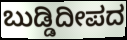
ಬುಡ್ಡಿದೀಪದ